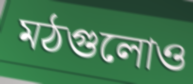
মঠগুলোও